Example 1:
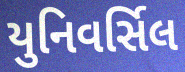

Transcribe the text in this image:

યુનિવર્સિલ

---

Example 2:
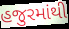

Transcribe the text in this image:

હજુરમાંથી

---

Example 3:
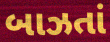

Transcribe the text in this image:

બાઝતાં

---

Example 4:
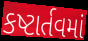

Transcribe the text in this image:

કષ્ટાર્તવમાં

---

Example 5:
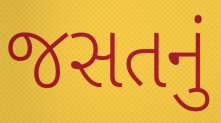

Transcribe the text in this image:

જસતનું